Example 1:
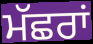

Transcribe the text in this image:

ਮੱਛਰਾਂ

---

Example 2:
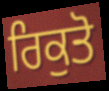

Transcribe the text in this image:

ਰਿਕੁਤੋ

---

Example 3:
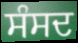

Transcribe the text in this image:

ਸੰਸਦ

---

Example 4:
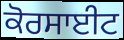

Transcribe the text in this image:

ਕੋਰਸਾਈਟ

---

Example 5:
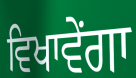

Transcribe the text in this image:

ਵਿਖਾਵੇਂਗਾ